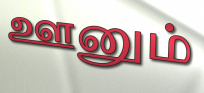
ஊனும்